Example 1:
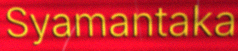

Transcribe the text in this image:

Syamantaka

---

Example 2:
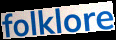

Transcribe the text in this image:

folklore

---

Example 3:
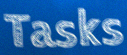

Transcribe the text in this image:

Tasks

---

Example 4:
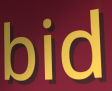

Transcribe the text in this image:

bid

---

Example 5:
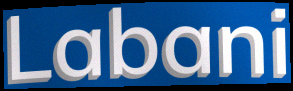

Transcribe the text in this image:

Labani